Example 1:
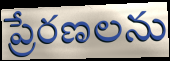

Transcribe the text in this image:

ప్రేరణలను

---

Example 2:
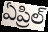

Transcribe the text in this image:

ఏప్రిల్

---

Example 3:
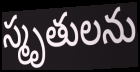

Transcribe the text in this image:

స్మృతులను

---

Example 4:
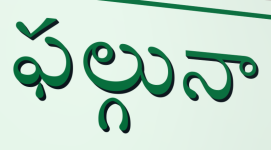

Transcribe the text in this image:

ఫల్గునా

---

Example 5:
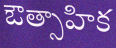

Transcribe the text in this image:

ఔత్సాహిక